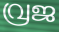
വ്രജ